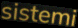
sistemi